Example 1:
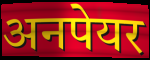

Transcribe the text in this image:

अनपेयर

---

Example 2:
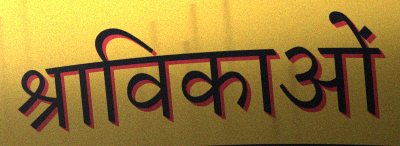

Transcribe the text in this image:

श्राविकाओं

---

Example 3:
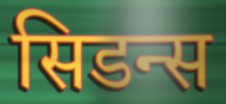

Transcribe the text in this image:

सिडन्स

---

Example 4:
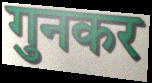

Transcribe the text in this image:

गुनकर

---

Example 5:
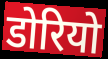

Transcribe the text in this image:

डोरियो